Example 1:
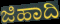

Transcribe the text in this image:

ಜಿಹಾದಿ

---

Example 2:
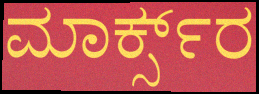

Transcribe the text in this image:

ಮಾರ್ಕ್ಸ್‌ರ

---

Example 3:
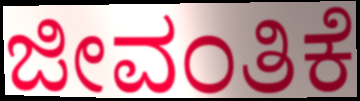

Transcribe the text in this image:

ಜೀವಂತಿಕೆ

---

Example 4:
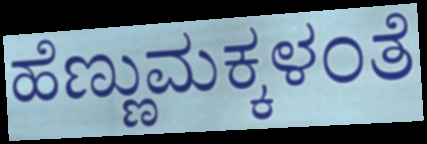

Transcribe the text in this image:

ಹೆಣ್ಣುಮಕ್ಕಳಂತೆ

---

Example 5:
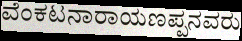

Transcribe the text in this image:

ವೆಂಕಟನಾರಾಯಣಪ್ಪನವರು